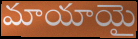
మాయాయై